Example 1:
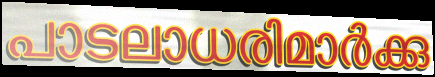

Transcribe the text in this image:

പാടലാധരിമാർക്കു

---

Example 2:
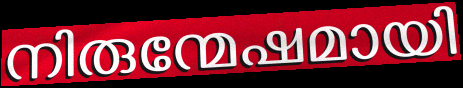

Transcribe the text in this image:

നിരുന്മേഷമായി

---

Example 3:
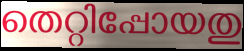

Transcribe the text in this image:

തെറ്റിപ്പോയതു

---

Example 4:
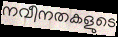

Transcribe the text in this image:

നവീനതകളുടെ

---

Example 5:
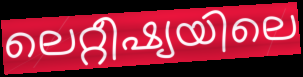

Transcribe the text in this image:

ലെറ്റീഷ്യയിലെ